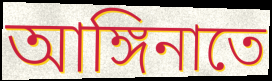
আঙ্গিনাতে